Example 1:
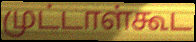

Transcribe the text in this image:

முட்டாள்கூட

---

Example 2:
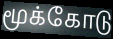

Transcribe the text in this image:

மூக்கோடு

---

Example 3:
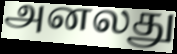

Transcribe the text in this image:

அனலது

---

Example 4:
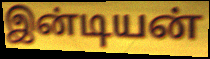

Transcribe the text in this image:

இன்டியன்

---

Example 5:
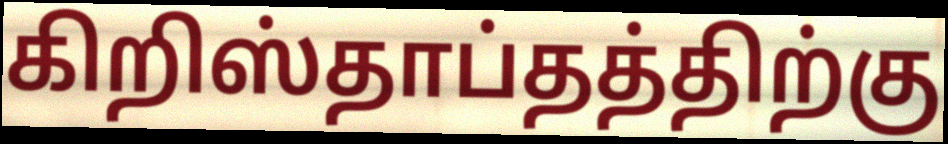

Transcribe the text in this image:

கிறிஸ்தாப்தத்திற்கு